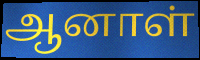
ஆனாள்